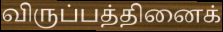
விருப்பத்தினைக்